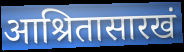
आश्रितासारखं